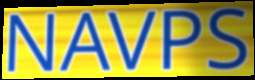
NAVPS